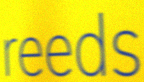
reeds